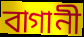
বাগানী